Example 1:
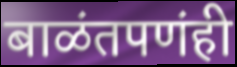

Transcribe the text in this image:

बाळंतपणंही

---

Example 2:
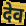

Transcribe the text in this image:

देव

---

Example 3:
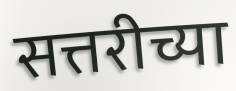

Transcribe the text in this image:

सत्तरीच्या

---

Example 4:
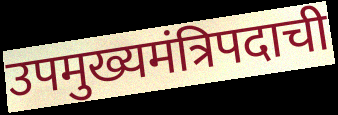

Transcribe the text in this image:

उपमुख्यमंत्रिपदाची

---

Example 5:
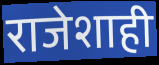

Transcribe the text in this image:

राजेशाही